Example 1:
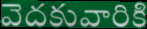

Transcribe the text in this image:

వెదకువారికి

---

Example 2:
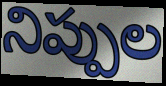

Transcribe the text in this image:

నిప్పుల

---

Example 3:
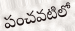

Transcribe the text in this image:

పంచవటిలో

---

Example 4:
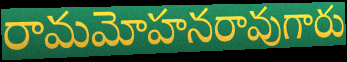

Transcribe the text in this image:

రామమోహనరావుగారు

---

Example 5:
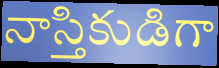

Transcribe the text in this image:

నాస్తికుడిగా